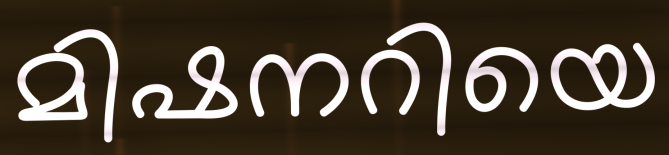
മിഷനറിയെ